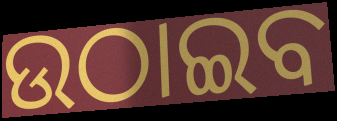
ଉଠାଇବ